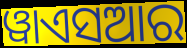
ୱାଏସଆର